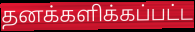
தனக்களிக்கப்பட்ட